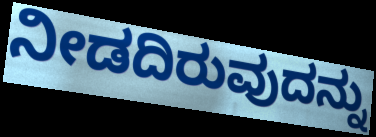
ನೀಡದಿರುವುದನ್ನು